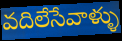
వదిలేసేవాళ్ళు